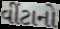
વીંટાનો